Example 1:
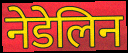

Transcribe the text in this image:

नेडेलिन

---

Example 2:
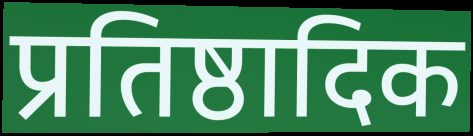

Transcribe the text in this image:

प्रतिष्ठादिक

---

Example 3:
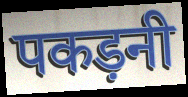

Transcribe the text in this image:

पकड़नी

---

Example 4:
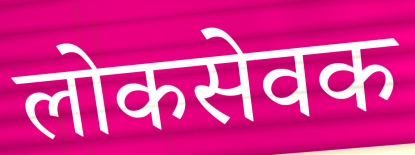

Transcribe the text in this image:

लोकसेवक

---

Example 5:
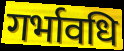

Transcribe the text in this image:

गर्भावधि